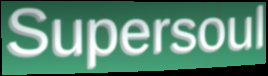
Supersoul